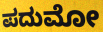
ಪದುಮೋ